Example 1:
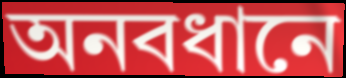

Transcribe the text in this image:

অনবধানে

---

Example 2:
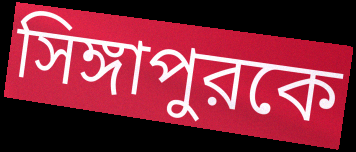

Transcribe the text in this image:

সিঙ্গাপুরকে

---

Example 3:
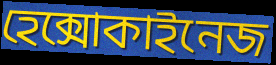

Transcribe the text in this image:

হেক্সোকাইনেজ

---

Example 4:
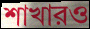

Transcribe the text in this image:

শাখারও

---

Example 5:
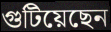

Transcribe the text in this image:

গুটিয়েছেন